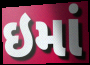
ઇમાં